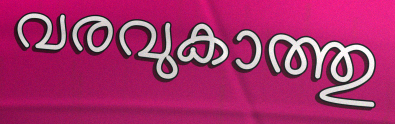
വരവുകാത്തു